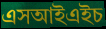
এসআইএইচ